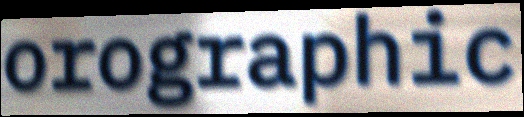
orographic